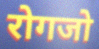
रोगजो